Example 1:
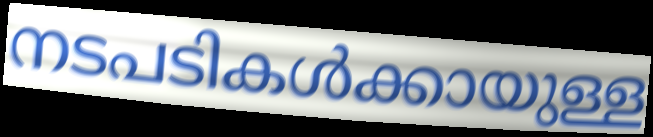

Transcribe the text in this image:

നടപടികൾക്കായുള്ള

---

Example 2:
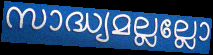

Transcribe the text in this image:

സാദ്ധ്യമല്ലല്ലോ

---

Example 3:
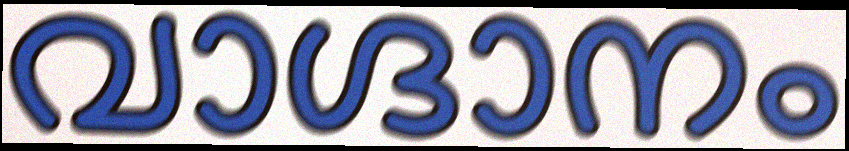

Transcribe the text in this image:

വാഗ്ദാനം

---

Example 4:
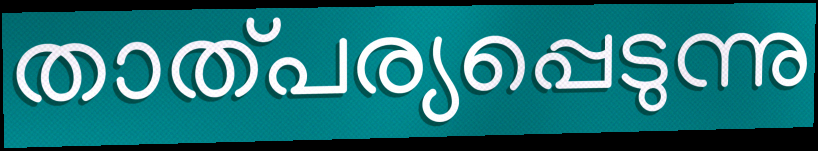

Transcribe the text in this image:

താത്പര്യപ്പെടുന്നു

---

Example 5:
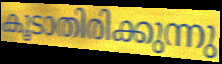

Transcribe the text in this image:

കൂടാതിരിക്കുന്നു